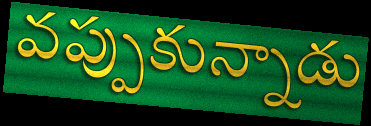
వప్పుకున్నాడు